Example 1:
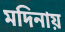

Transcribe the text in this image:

মদিনায়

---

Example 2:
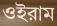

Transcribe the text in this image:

ওইরাম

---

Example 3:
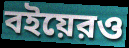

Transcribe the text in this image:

বইয়েরও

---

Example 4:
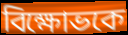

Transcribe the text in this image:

বিক্ষোভকে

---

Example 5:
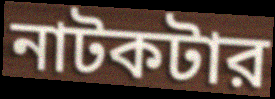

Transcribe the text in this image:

নাটকটার